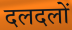
दलदलों